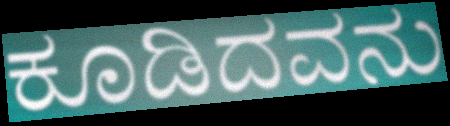
ಕೂಡಿದವನು